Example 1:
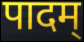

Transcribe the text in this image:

पादम्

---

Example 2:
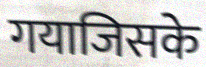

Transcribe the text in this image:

गयाजिसके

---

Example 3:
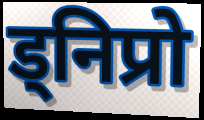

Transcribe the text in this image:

ड्निप्रो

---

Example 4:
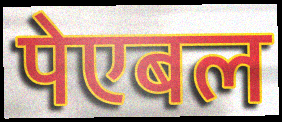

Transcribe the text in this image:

पेएबल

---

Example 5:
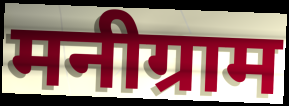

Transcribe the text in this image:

मनीग्राम